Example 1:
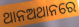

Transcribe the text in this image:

ଥାନଅଥାନରେ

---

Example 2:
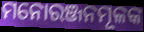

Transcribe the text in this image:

ମନୋରଞ୍ଜନମୂଳକ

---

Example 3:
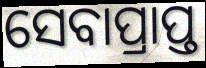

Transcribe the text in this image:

ସେବାପ୍ରାପ୍ତ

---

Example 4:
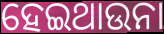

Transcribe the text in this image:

ହେଇଥାଉନା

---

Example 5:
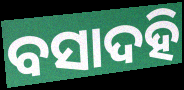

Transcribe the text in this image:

ବସାଦହି